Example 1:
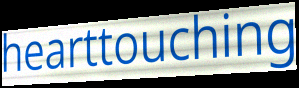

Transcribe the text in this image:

hearttouching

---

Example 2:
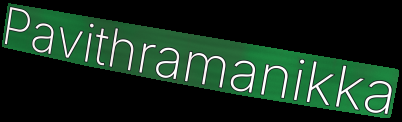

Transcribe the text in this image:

Pavithramanikka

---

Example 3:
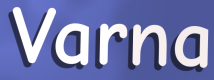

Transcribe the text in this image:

Varna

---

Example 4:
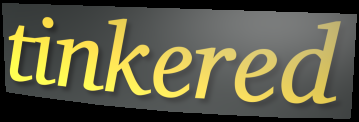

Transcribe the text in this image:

tinkered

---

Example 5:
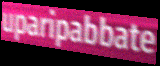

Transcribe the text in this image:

uparipabbate